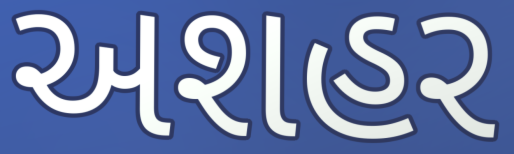
અશહર